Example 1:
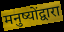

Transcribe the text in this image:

मनुष्योंद्वारा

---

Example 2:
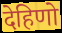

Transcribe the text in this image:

देहिणो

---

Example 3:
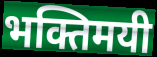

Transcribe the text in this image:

भक्तिमयी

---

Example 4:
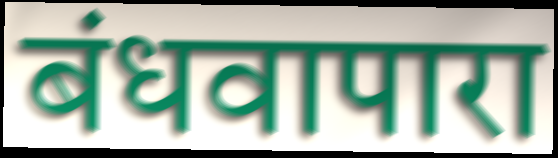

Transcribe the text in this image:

बंधवापारा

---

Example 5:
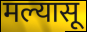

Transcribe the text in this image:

मल्यासू